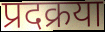
प्रदक्रया